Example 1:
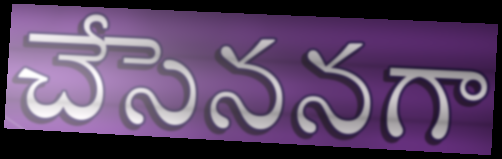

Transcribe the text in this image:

చేసెననగా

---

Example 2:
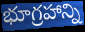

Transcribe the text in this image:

భూగ్రహాన్ని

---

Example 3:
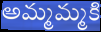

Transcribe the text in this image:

అమ్మమ్మకి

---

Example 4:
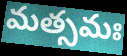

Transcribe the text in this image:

మత్సమః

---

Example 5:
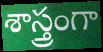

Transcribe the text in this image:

శాస్త్రంగా